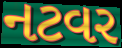
નટવર